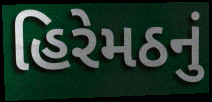
હિરેમઠનું